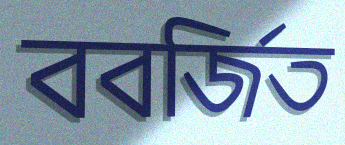
ববর্জিত